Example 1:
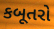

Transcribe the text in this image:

કબૂતરો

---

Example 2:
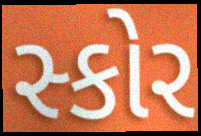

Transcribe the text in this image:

સ્કોર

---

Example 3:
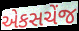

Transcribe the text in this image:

એકસચેંજ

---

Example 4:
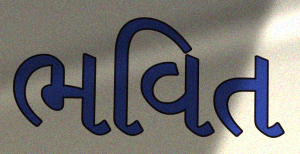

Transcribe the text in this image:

ભવિત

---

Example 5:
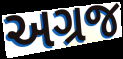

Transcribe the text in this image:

અગ્રજ